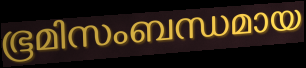
ഭൂമിസംബന്ധമായ